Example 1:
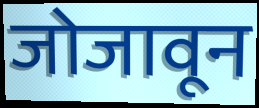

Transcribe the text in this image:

जोजावून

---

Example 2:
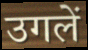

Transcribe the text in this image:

उगलें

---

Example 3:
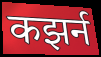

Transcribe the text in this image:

कझर्न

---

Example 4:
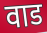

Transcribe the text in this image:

वाड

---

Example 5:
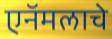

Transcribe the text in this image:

एनॅमलाचे